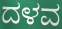
ದಳವ